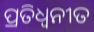
ପ୍ରତିଧ୍ବନୀତ